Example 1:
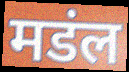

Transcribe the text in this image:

मडंल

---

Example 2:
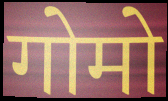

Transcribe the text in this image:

गोमो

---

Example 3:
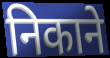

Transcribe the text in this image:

निकाने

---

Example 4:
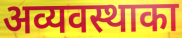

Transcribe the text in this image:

अव्यवस्थाका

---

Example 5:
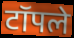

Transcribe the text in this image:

टॉपले